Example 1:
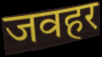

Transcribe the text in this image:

जवहर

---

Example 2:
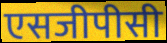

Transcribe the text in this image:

एसजीपीसी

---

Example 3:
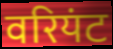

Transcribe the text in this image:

वरियंट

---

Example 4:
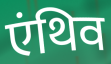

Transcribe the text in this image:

एंथिव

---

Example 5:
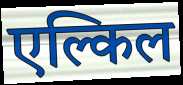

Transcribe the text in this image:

एल्किल